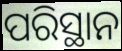
ପରିସ୍ଥାନ